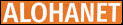
ALOHANET